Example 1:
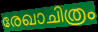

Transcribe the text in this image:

രേഖാചിത്രം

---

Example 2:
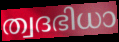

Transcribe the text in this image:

ത്വദഭിധാ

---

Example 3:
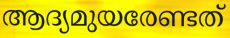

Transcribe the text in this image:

ആദ്യമുയരേണ്ടത്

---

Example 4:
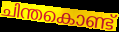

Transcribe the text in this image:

ചിന്തകൊണ്ട്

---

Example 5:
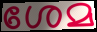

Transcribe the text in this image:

ശേമ